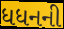
ધધનની